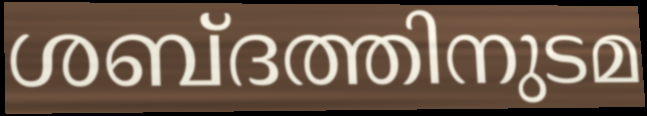
ശബ്ദത്തിനുടമ